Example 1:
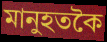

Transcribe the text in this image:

মানুহতকৈ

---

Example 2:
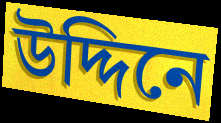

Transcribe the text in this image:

উদ্দিনে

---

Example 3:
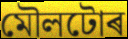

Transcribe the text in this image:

মৌলটোৰ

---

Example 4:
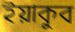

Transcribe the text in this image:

ইয়াকুব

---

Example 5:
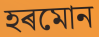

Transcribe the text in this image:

হৰমোন